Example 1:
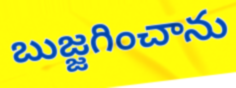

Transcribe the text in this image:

బుజ్జగించాను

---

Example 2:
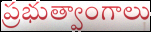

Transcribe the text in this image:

ప్రభుత్వాంగాలు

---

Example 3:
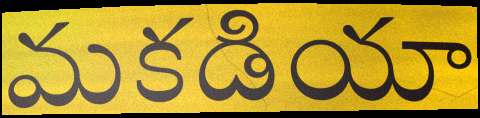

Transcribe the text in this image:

మకడియా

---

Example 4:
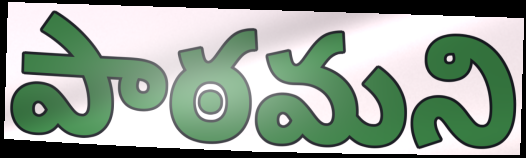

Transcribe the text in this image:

పాఠమని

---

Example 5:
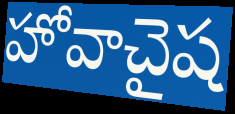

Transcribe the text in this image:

హోవాచైష